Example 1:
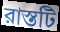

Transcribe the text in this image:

রাস্তটি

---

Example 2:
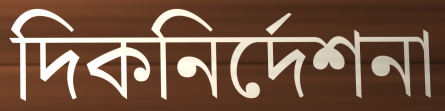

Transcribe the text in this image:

দিকনির্দেশনা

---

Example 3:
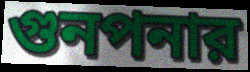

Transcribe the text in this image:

গুনপনার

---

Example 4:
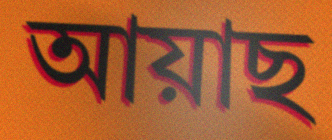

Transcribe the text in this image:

আয়াছ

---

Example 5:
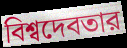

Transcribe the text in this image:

বিশ্বদেবতার